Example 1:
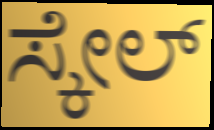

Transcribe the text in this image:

ಸ್ಕೇಲ್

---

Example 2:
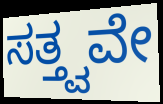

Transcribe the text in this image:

ಸತ್ತ್ವವೇ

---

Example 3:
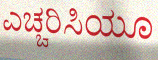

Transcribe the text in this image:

ಎಚ್ಚರಿಸಿಯೂ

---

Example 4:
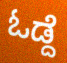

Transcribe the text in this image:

ಓಡ್ದೆ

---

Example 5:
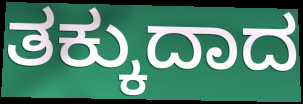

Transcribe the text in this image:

ತಕ್ಕುದಾದ